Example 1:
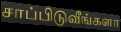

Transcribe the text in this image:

சாப்பிடுவீங்களா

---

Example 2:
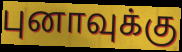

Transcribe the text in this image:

புனாவுக்கு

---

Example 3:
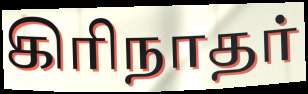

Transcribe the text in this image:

கிரிநாதர்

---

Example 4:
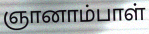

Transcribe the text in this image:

ஞானாம்பாள்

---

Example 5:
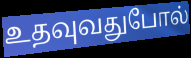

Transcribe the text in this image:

உதவுவதுபோல்